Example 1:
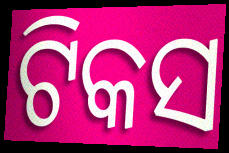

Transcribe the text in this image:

ଟିକସ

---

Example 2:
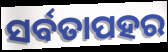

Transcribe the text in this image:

ସର୍ବତାପହର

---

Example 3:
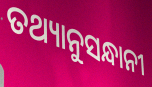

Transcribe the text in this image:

ତଥ୍ୟାନୁସନ୍ଧାନୀ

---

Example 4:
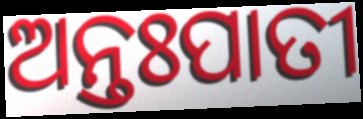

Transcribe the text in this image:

ଅନ୍ତଃପାତୀ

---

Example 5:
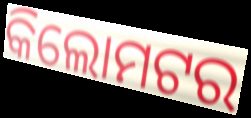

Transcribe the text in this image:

କିଲୋମଟର